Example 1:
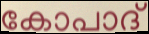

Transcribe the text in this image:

കോപാദ്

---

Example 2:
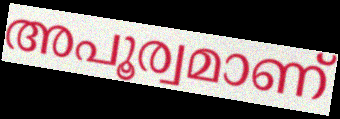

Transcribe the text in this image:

അപൂര്വമാണ്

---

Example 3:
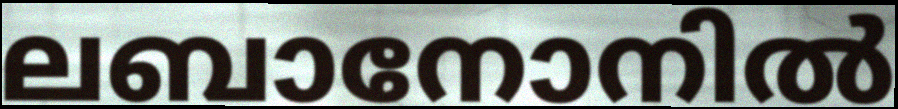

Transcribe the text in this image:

ലബാനോനിൽ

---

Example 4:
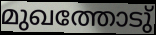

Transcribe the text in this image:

മുഖത്തോടു്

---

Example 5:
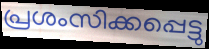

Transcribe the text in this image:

പ്രശംസിക്കപ്പെട്ടു